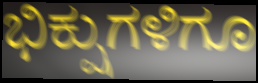
ಭಿಕ್ಷುಗಳಿಗೂ